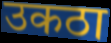
उकठा